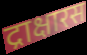
द्राक्षारस